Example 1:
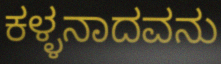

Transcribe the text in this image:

ಕಳ್ಳನಾದವನು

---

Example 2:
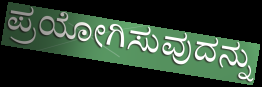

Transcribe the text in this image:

ಪ್ರಯೋಗಿಸುವುದನ್ನು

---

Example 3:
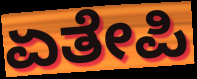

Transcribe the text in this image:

ಏತೇಪಿ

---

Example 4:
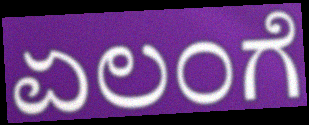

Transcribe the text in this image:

ಏಲಂಗೆ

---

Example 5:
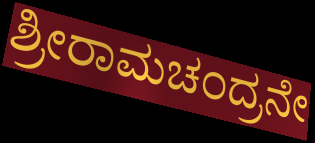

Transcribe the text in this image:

ಶ್ರೀರಾಮಚಂದ್ರನೇ